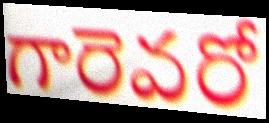
గారెవరో